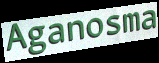
Aganosma